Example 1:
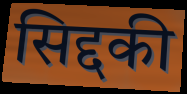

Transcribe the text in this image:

सिद्दकी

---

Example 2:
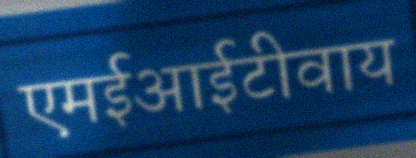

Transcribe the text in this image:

एमईआईटीवाय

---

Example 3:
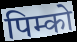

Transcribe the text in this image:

पिम्को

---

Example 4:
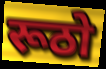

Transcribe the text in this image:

रूठो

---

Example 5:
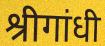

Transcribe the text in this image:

श्रीगांधी